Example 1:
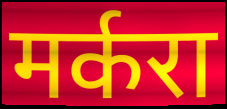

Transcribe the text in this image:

मर्करा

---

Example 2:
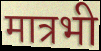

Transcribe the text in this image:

मात्रभी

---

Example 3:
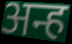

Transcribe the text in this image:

अन्ह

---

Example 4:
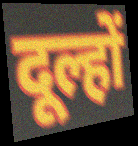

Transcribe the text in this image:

दूल्हों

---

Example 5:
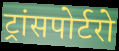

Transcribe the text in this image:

ट्रांसपोर्टरो